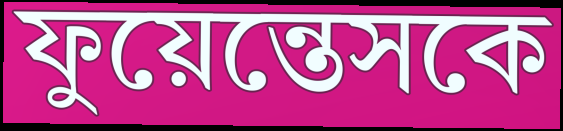
ফুয়েন্তেসকে